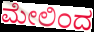
ಮೇಲಿಂದ